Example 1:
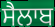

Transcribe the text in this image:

ਸੈਲਾਬ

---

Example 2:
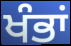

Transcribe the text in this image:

ਖੰਭਾਂ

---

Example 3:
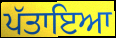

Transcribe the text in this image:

ਪੱਤਾਇਆ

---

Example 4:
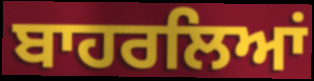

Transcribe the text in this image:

ਬਾਹਰਲਿਆਂ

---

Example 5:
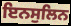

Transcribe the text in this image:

ਇਨਸੁਲਿਨ